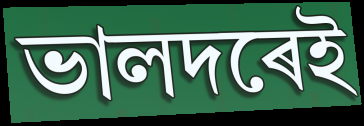
ভালদৰেই